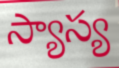
స్యాస్య